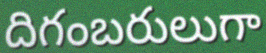
దిగంబరులుగా